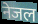
नेजल